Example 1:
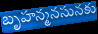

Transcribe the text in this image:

బృహన్మనసునకు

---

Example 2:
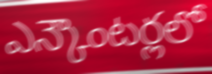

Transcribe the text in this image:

ఎన్కౌంటర్లలో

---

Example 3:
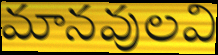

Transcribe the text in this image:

మానవులవి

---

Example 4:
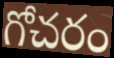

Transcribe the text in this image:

గోచరం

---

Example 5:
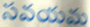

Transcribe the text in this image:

సవయమ